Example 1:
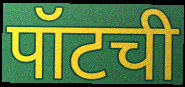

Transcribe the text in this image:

पॉटची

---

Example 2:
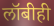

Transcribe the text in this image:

लॉबीही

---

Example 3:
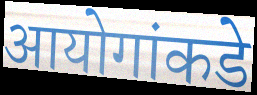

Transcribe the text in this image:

आयोगांकडे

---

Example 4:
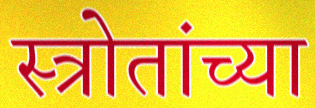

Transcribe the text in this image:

स्त्रोतांच्या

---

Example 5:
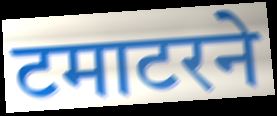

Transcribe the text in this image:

टमाटरने